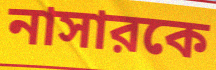
নাসারকে